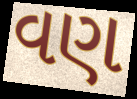
વણ